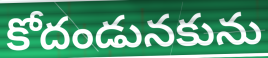
కోదండునకును